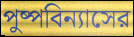
পুষ্পবিন্যাসের